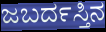
ಜಬರ್ದಸ್ತಿನ